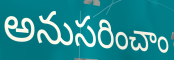
అనుసరించాం